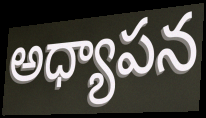
అధ్యాపన